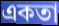
একতা